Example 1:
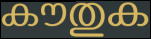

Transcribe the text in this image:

കൗതുക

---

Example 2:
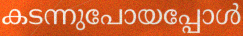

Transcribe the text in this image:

കടന്നുപോയപ്പോൾ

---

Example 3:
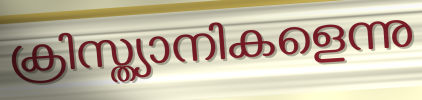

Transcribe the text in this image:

ക്രിസ്ത്യാനികളെന്നു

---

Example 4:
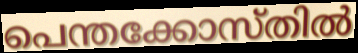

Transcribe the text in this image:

പെന്തക്കോസ്തിൽ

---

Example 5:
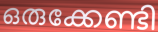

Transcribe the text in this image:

ഒരുക്കേണ്ടി